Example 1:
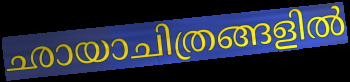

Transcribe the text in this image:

ഛായാചിത്രങ്ങളിൽ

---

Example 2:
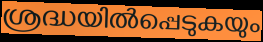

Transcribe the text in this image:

ശ്രദ്ധയിൽപ്പെടുകയും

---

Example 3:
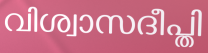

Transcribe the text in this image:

വിശ്വാസദീപ്തി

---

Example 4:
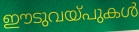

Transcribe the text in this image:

ഈടുവയ്പുകൾ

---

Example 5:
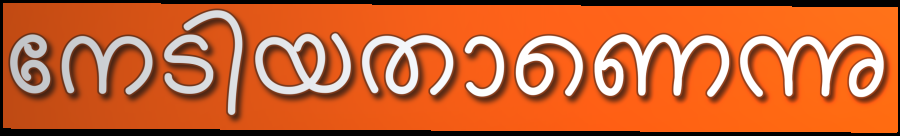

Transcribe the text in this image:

നേടിയതാണെന്നു